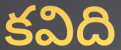
కవిది